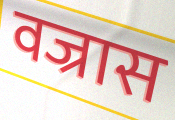
वज्रास